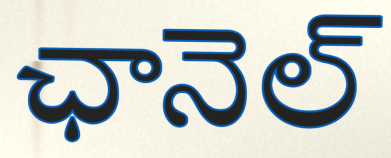
ఛానెల్